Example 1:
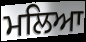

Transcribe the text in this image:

ਮਲਿਆ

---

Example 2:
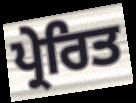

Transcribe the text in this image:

ਪ੍ਰੇਰਿਤ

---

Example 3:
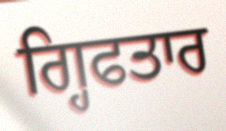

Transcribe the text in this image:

ਗ੍ਹਿਫਤਾਰ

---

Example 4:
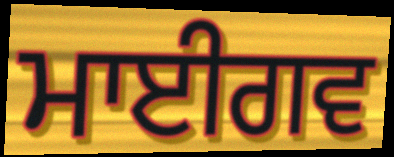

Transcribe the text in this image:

ਮਾਈਗਵ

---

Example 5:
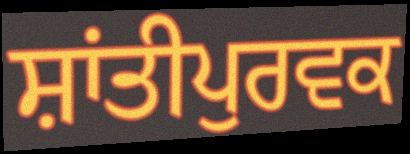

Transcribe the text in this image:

ਸ਼ਾਂਤੀਪੁਰਵਕ